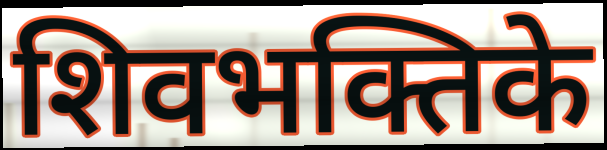
शिवभक्तिके